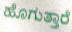
ಹೊಗುತ್ತಾರೆ